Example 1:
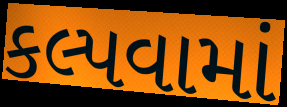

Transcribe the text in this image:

કલ્પવામાં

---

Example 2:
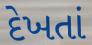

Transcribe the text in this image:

દેખતાં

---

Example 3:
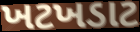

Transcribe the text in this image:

ખટખડાટ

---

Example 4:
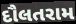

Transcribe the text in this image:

દૌલતરામ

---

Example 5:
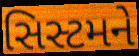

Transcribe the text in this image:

સિસ્ટમને